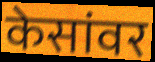
केसांवर